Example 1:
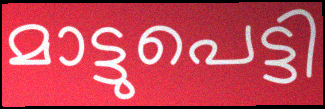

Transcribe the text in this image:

മാട്ടുപെട്ടി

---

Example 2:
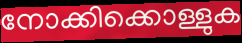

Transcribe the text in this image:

നോക്കിക്കൊള്ളുക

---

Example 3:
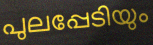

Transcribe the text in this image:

പുലപ്പേടിയും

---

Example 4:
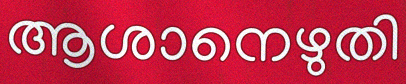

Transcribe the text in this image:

ആശാനെഴുതി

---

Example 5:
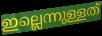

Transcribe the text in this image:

ഇല്ലെന്നുള്ളത്